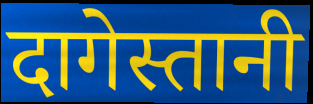
दागेस्तानी